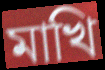
মাখি